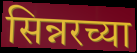
सिन्नरच्या